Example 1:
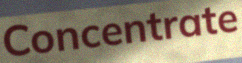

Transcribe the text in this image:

Concentrate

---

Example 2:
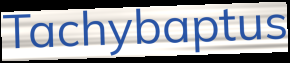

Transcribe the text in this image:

Tachybaptus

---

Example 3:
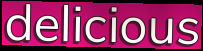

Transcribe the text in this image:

delicious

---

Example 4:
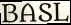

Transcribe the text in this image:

BASL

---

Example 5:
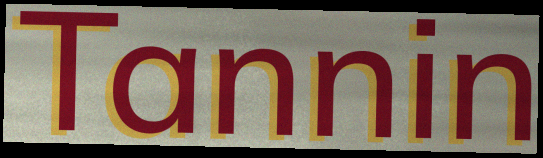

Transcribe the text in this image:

Tannin